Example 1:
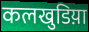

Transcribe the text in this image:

कलखुडिय़ा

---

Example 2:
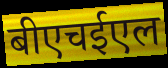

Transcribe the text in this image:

बीएचईएल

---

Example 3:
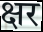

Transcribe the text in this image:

क्षर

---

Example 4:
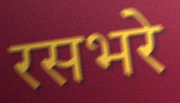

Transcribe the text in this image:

रसभरे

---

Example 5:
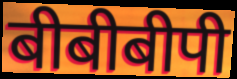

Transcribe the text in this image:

बीबीबीपी